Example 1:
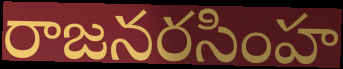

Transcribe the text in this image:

రాజనరసింహ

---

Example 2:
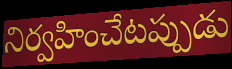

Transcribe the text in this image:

నిర్వహించేటప్పుడు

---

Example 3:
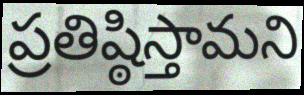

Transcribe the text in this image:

ప్రతిష్ఠిస్తామని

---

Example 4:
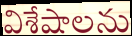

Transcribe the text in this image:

విశేషాలను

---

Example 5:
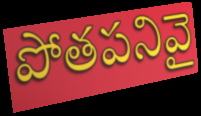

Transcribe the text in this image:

పోతపనివై